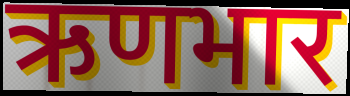
ऋणभार